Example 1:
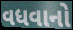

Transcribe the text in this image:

વધવાનો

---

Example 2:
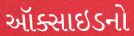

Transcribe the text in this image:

ઑક્સાઇડનો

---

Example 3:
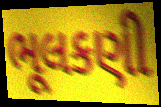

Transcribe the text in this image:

ભૂલકણી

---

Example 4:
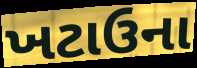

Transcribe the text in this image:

ખટાઉના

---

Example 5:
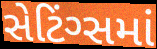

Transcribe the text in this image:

સેટિંગ્સમાં